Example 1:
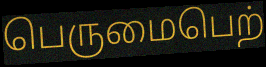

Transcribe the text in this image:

பெருமைபெற்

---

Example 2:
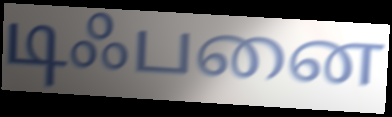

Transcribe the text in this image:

டிஃபனை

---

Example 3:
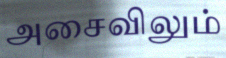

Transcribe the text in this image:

அசைவிலும்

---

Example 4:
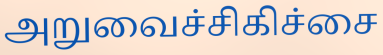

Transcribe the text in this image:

அறுவைச்சிகிச்சை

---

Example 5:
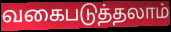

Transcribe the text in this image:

வகைபடுத்தலாம்